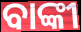
ବାଙ୍କୀ